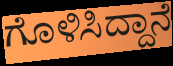
ಗೊಳಿಸಿದ್ದಾನೆ